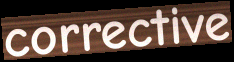
corrective